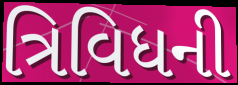
ત્રિવિધની